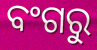
ବଂଗରୁ